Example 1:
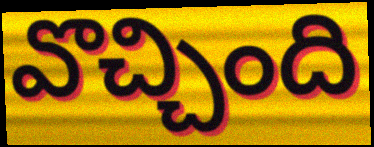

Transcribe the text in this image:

వొచ్చింది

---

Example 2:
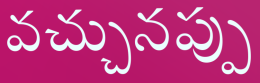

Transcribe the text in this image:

వచ్చునప్పు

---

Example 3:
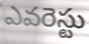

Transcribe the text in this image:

ఎవరెస్టు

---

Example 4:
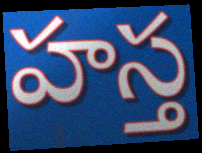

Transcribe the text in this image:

హస్త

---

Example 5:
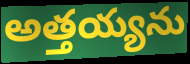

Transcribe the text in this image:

అత్తయ్యను